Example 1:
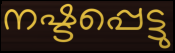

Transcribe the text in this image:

നഷ്ടപ്പെട്ടു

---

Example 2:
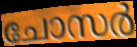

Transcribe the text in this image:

ചോസർ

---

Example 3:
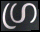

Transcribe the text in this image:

ഗ്ര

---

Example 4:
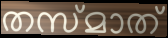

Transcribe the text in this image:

തസ്മാത്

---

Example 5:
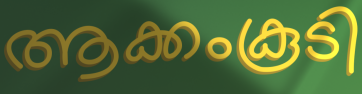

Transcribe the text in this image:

ആക്കംകൂടി